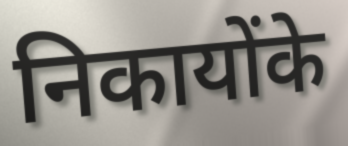
निकायोंके